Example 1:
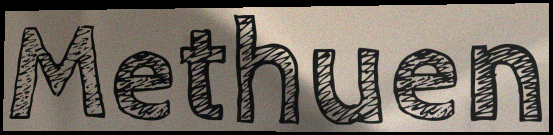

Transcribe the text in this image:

Methuen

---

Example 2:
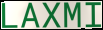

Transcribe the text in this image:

LAXMI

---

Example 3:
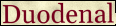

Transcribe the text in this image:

Duodenal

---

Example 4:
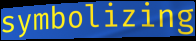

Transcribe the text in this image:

symbolizing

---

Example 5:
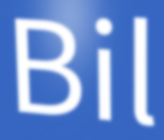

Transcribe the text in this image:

Bil